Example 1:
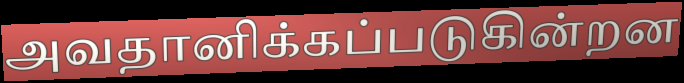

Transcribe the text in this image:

அவதானிக்கப்படுகின்றன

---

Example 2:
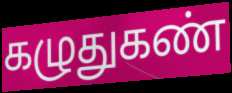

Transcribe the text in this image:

கழுதுகண்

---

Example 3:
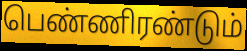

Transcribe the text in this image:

பெண்ணிரண்டும்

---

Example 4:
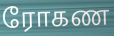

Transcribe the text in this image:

ரோகண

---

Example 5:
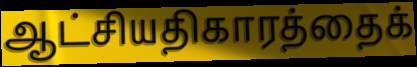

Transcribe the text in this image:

ஆட்சியதிகாரத்தைக்